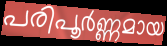
പരിപൂർണ്ണമായ